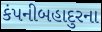
કંપનીબહાદુરના